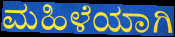
ಮಹಿಳೆಯಾಗಿ